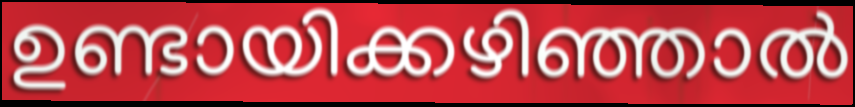
ഉണ്ടായിക്കഴിഞ്ഞാൽ